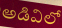
అడివిలో